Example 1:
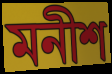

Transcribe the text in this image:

মনীশ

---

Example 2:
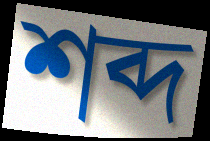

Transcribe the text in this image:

শব্দ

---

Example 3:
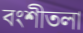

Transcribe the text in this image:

বংশীতলা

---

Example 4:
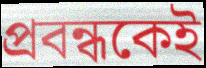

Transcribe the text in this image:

প্রবন্ধকেই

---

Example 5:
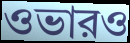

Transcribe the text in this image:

ওভারও